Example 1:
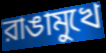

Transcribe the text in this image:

রাঙামুখে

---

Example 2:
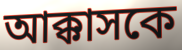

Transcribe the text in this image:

আক্কাসকে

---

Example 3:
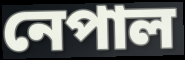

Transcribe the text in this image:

নেপাল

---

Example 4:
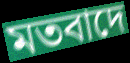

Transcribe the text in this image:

মতবাদে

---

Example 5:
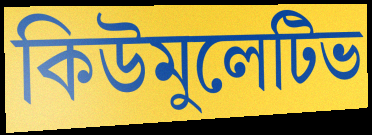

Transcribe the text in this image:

কিউমুলেটিভ